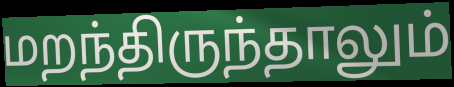
மறந்திருந்தாலும்